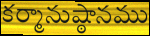
కర్మానుష్ఠానము